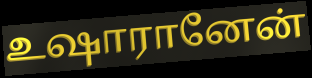
உஷாரானேன்